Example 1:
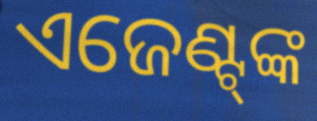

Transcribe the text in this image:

ଏଜେଣ୍ଟ୍‍ଙ୍କ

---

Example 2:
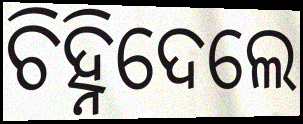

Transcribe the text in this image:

ଚିହ୍ନିଦେଲେ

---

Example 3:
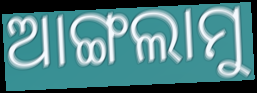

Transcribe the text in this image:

ଆଙ୍ଗଲାମୁ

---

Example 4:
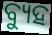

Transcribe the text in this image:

ବ୍ୟୁହ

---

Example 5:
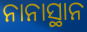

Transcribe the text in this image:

ନାନାସ୍ଥାନ